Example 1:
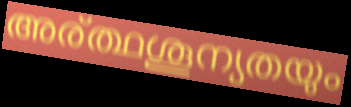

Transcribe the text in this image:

അര്ത്ഥശൂന്യതയും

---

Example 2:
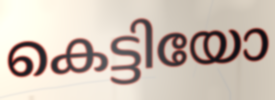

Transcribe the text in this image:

കെട്ടിയോ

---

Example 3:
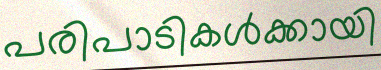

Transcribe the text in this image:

പരിപാടികൾക്കായി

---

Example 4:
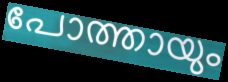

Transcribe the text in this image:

പോത്തായും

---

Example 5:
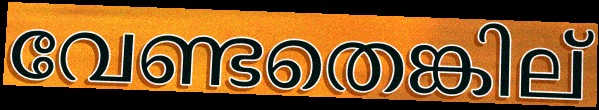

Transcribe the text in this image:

വേണ്ടതെങ്കില്